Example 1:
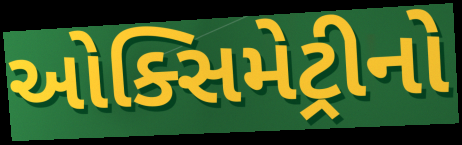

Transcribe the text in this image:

ઓક્સિમેટ્રીનો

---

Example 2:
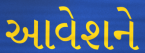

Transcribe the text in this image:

આવેશને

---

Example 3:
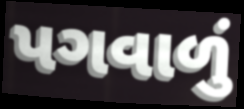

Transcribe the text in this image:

પગવાળું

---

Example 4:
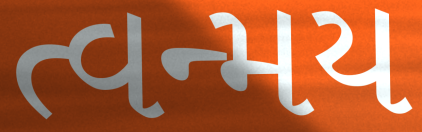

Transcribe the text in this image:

ત્વન્મય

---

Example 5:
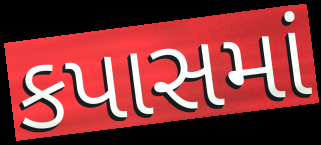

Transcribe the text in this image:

કપાસમાં